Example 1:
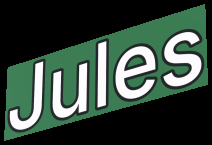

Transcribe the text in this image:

Jules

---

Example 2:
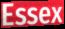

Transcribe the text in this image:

Essex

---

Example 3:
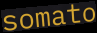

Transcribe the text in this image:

somato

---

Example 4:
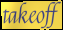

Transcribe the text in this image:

takeoff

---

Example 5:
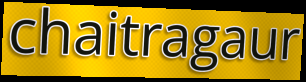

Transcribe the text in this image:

chaitragaur